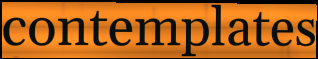
contemplates